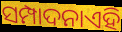
ସମ୍ପାଦନାଏହି